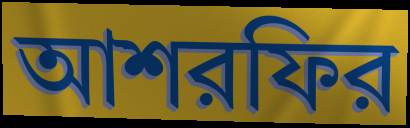
আশরফির